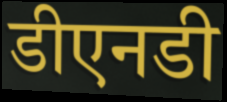
डीएनडी